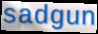
sadgun